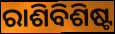
ରାଶିବିଶିଷ୍ଟ